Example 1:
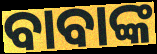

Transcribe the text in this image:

ବାବାଙ୍କ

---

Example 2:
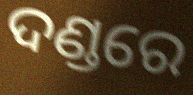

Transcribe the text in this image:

ଦଣ୍ଡରେ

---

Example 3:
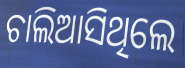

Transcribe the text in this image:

ଚାଲିଆସିଥିଲେ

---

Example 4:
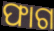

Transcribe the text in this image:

ଫାଗ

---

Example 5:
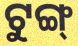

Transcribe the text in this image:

ଟୁଙ୍ଗ୍